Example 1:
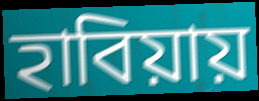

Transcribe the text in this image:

হাবিয়ায়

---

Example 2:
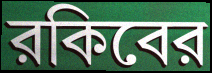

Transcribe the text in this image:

রকিবের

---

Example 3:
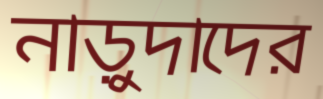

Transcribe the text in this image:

নাড়ুদাদের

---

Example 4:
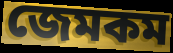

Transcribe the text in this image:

জেমকম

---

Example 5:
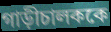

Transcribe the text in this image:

গাড়ীচালককে